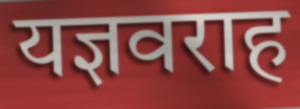
यज्ञवराह